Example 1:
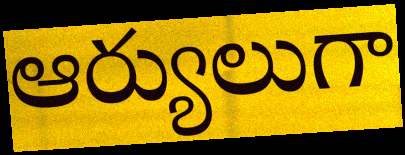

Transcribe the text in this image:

ఆర్యులుగా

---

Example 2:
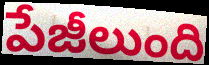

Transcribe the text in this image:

పేజీలుంది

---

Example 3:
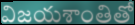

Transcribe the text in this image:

విజయశాంతితో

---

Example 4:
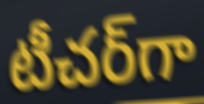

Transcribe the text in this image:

టీచర్‌గా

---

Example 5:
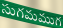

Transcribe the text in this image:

సుగమముగ